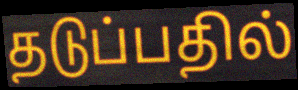
தடுப்பதில்